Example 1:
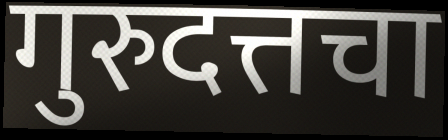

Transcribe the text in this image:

गुरुदत्तचा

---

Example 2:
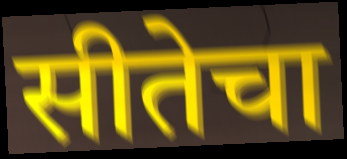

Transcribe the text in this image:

सीतेचा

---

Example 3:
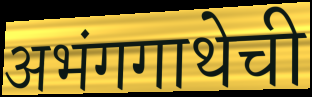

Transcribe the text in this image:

अभंगगाथेची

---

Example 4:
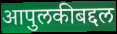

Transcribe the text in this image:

आपुलकीबद्दल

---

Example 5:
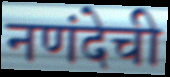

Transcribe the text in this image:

नणंदेची